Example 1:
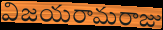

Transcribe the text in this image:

విజయరామరాజు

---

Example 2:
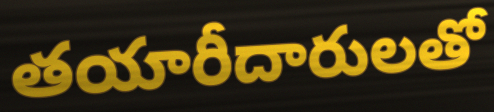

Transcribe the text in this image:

తయారీదారులతో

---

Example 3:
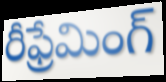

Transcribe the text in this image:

రీఫ్రేమింగ్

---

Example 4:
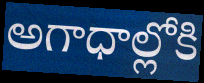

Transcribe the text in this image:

అగాధాల్లోకి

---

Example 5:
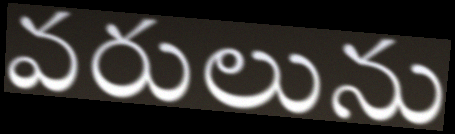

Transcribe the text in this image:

వరులును